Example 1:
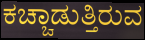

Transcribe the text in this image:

ಕಚ್ಚಾಡುತ್ತಿರುವ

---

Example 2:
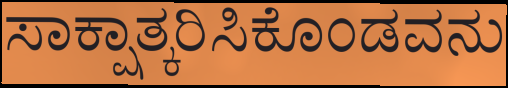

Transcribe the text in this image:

ಸಾಕ್ಷಾತ್ಕರಿಸಿಕೊಂಡವನು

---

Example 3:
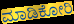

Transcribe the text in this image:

ಮಾಡಿಕೋರಿ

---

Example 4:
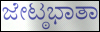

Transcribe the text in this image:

ಜೇಟ್ಠಭಾತಾ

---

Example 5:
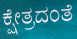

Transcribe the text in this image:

ಕ್ಷೇತ್ರದಂತೆ